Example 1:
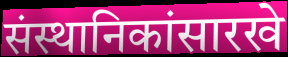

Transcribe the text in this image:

संस्थानिकांसारखे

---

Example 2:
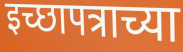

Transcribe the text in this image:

इच्छापत्राच्या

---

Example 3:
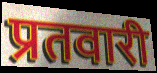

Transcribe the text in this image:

प्रतवारी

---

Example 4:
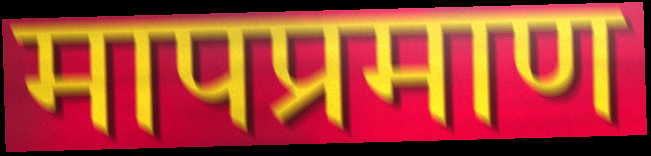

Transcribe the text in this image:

मापप्रमाण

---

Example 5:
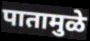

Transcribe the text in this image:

पातामुळे